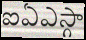
ఐఏఎస్గా